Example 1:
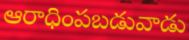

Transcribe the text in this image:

ఆరాధింపబడువాడు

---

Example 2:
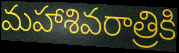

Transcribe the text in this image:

మహాశివరాత్రికి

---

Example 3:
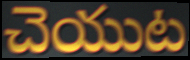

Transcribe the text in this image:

చెయుట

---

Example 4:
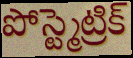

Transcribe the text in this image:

పోస్ట్మెట్రిక్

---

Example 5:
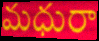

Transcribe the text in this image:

మధురా